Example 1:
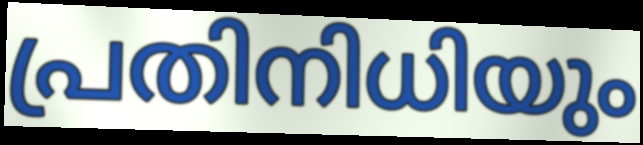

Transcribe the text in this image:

പ്രതിനിധിയും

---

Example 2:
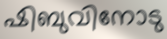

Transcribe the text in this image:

ഷിബുവിനോടു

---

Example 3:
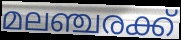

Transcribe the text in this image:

മലഞ്ചരക്ക്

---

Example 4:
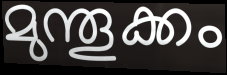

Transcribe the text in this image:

മുന്തൂക്കം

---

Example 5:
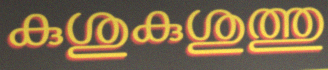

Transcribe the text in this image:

കുശുകുശുത്തു